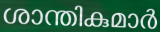
ശാന്തികുമാർ